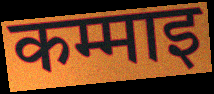
कम्माइ